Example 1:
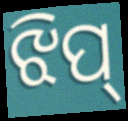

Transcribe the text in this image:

ଝିପ୍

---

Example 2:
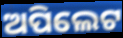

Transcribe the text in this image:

ଅପିଲେଟ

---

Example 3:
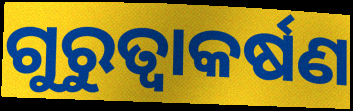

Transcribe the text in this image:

ଗୁରୁତ୍ଵାକର୍ଷଣ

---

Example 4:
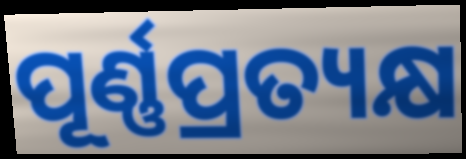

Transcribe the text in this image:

ପୂର୍ଣ୍ଣପ୍ରତ୍ୟକ୍ଷ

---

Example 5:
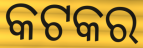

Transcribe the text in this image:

କଟକର